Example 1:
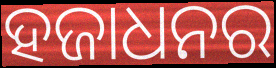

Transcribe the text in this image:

ହଜାଧନର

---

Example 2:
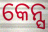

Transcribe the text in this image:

କେନ୍ସ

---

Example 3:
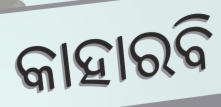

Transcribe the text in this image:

କାହାରବି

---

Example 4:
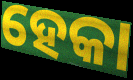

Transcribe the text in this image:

ହେକା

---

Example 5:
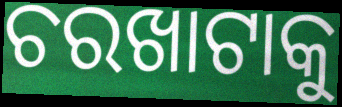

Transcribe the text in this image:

ଚରଖାଟାକୁ